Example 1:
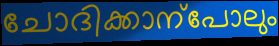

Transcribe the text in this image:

ചോദിക്കാന്പോലും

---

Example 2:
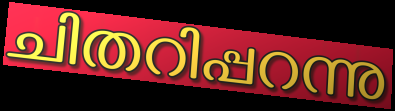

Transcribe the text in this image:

ചിതറിപ്പറന്നു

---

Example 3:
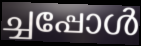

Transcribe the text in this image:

ച്ചപ്പോൾ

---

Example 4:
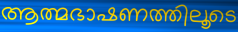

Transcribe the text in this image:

ആത്മഭാഷണത്തിലൂടെ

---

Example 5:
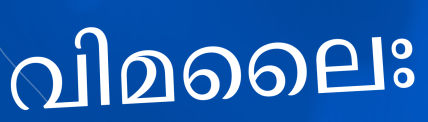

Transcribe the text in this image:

വിമലൈഃ